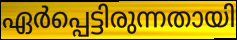
ഏർപ്പെട്ടിരുന്നതായി